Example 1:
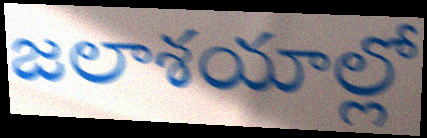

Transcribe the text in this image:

జలాశయాల్లో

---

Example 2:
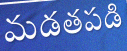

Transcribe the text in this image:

మడతపడి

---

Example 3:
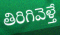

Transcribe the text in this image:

తిరిగివెళ్తే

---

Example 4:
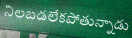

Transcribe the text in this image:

నిలబడలేకపోతున్నాడు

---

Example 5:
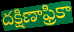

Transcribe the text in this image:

దక్షిణాఫ్రికా